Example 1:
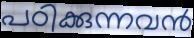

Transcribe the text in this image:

പഠിക്കുന്നവൻ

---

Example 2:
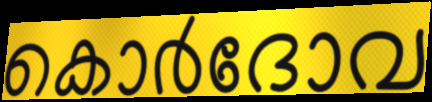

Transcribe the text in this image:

കൊർദോവ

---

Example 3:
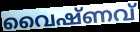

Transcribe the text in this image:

വൈഷ്ണവ്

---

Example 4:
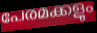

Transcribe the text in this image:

പേരമക്കളും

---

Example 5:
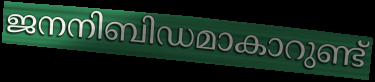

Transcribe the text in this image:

ജനനിബിഡമാകാറുണ്ട്